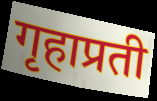
गृहाप्रती